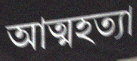
আত্মহত্যা